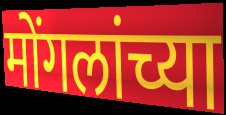
मोंगलांच्या